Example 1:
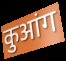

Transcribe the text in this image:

कुआंग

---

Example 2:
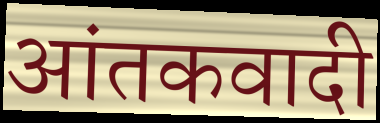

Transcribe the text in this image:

आंतकवादी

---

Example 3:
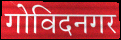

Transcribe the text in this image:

गोविदनगर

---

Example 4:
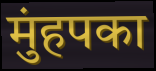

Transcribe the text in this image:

मुंहपका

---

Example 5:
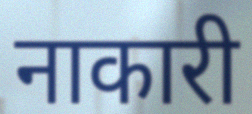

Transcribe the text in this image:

नाकारी